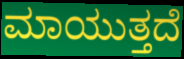
ಮಾಯುತ್ತದೆ